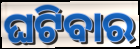
ଘଟିବାର